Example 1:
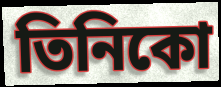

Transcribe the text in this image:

তিনিকো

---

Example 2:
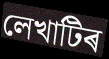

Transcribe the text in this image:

লেখাটিৰ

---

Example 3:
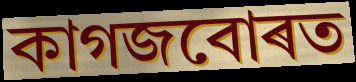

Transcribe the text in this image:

কাগজবোৰত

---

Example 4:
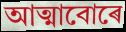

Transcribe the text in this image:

আত্মাবোৰে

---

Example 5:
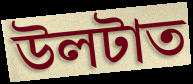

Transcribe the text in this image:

উলটাত